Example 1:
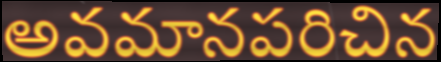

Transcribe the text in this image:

అవమానపరిచిన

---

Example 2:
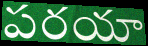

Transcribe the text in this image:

పరయా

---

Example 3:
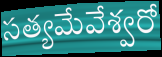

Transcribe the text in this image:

సత్యమేవేశ్వరో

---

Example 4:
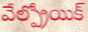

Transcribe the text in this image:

వేల్ప్రోయిక్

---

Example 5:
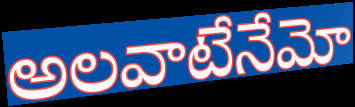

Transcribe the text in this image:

అలవాటేనేమో